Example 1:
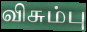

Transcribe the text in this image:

விசும்பு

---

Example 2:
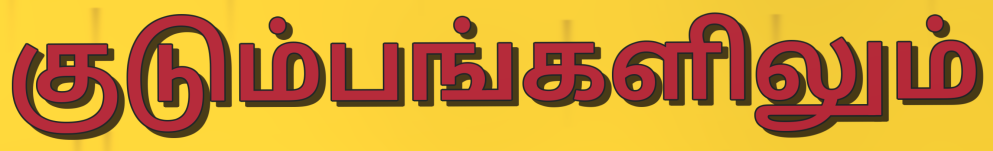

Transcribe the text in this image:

குடும்பங்களிலும்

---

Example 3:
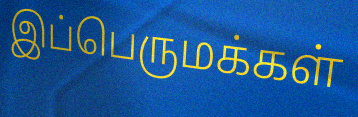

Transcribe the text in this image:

இப்பெருமக்கள்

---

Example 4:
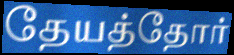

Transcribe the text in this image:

தேயத்தோர்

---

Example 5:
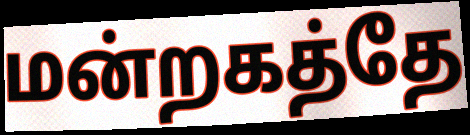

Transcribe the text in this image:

மன்றகத்தே